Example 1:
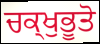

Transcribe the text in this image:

ਚਕ੍ਖੁਭੂਤੋ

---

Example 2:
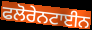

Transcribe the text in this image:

ਫਲੋਰੇਨਟਾਈਨ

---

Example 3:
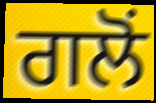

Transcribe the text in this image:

ਗਲੋਂ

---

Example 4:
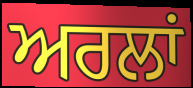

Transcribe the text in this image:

ਅਰਲਾਂ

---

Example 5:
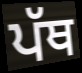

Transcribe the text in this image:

ਪੱਥ